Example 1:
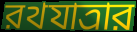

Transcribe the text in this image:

রথযাত্রার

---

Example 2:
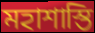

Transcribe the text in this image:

মহাশাস্তি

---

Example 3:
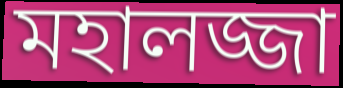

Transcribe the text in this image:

মহালজ্জা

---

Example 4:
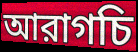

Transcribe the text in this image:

আরাগচি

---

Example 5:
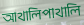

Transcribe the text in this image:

আথালিপাথালি